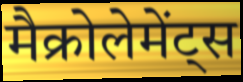
मैक्रोलेमेंट्स